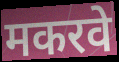
मकरवे